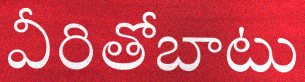
వీరితోబాటు